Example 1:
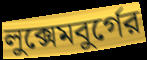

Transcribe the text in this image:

লুক্সেমবুর্গের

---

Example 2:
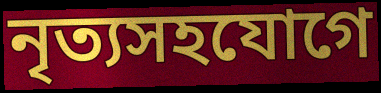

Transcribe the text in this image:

নৃত্যসহযোগে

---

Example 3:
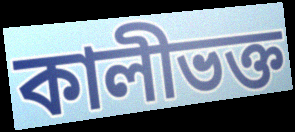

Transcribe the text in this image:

কালীভক্ত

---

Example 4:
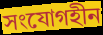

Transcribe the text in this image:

সংযোগহীন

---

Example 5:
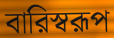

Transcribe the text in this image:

বারিস্বরূপ